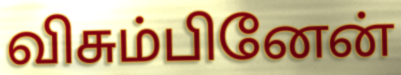
விசும்பினேன்